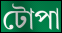
টোপা